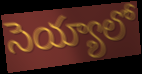
సెయ్యాలో